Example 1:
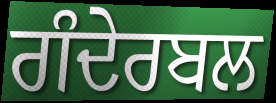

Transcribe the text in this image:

ਗੰਦੇਰਬਲ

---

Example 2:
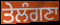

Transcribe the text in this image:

ਤੇਲੰਗਣਾ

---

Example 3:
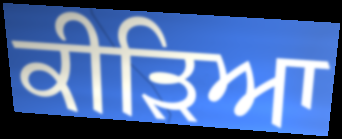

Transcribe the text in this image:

ਕੀੜਿਆ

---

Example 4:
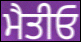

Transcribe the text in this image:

ਮੈਤੀਓ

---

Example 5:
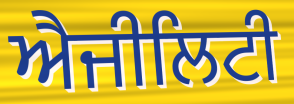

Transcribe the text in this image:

ਐਜੀਲਿਟੀ